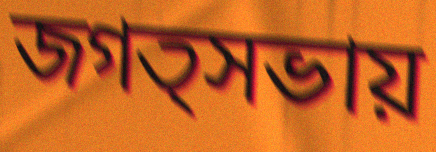
জগত্সভায়